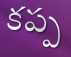
కప్ప